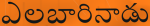
ఎలబారినాడు